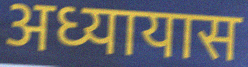
अध्यायास